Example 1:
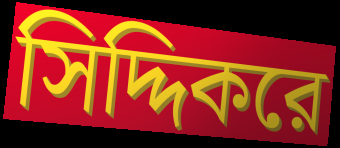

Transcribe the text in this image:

সিদ্দিকরে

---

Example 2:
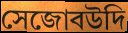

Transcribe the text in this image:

সেজোবউদি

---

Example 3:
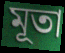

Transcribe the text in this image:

মূতা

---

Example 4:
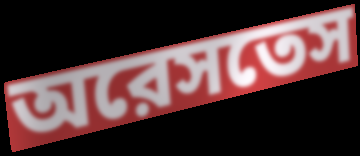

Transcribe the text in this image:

অরেসতেস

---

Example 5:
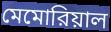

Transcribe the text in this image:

মেমোরিয়াল